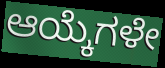
ಆಯ್ಕೆಗಳೇ